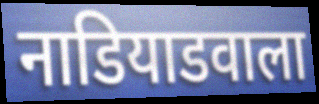
नाडियाडवाला